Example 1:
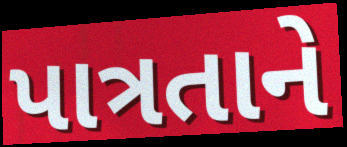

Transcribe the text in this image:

પાત્રતાને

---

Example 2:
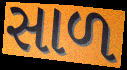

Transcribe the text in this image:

સાળ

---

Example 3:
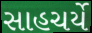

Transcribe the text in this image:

સાહચર્યે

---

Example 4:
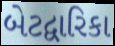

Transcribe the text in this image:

બેટદ્વારિકા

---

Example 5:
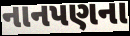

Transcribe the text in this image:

નાનપણના